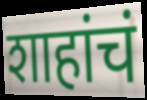
शाहांचं